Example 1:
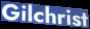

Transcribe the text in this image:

Gilchrist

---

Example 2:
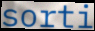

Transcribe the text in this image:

sorti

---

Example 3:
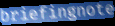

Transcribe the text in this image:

briefingnote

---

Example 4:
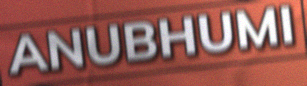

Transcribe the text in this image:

ANUBHUMI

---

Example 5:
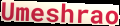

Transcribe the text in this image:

Umeshrao